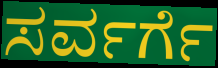
ಸರ್ವರ್ಗೆ